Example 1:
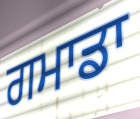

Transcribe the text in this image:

ਗਮਾਡਾ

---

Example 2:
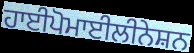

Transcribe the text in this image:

ਹਾਈਪੋਮਾਈਲੀਨੇਸ਼ਨ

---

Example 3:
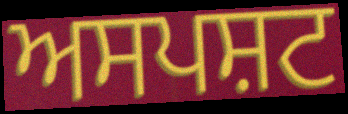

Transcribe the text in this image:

ਅਸਪਸ਼ਟ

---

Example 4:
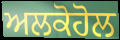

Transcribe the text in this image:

ਅਲਕੋਹੋਲ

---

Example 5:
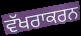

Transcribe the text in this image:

ਵੱਖਰਾਕਰਨ